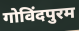
गोविंदपुरम